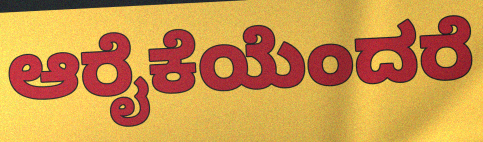
ಆರೈಕೆಯೆಂದರೆ